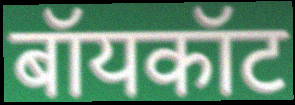
बॉयकॉट